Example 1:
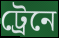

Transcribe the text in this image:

ট্রেনে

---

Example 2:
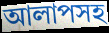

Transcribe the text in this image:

আলাপসহ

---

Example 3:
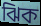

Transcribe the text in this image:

ঝিক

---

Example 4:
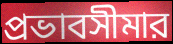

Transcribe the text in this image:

প্রভাবসীমার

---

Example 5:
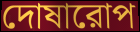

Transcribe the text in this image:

দোষারোপ